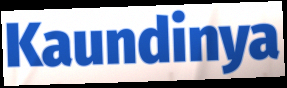
Kaundinya